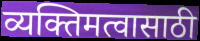
व्यक्तिमत्वासाठी